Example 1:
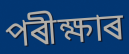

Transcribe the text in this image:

পৰীক্ষাৰ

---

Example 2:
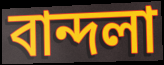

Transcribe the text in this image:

বান্দলা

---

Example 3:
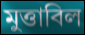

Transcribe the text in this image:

মুত্তাবিল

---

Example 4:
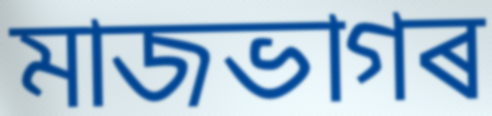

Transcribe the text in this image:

মাজভাগৰ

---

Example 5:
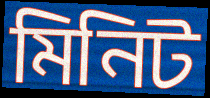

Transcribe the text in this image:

মিনিট